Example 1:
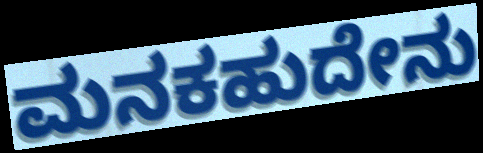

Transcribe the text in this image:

ಮನಕಹುದೇನು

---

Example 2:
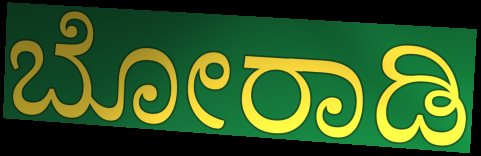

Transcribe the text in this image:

ಬೋರಾಡಿ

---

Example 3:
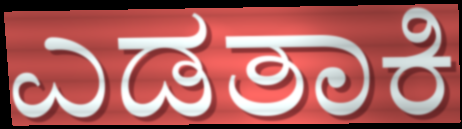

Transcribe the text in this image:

ಎಡತಾಕಿ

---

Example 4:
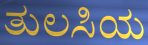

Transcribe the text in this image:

ತುಲಸಿಯ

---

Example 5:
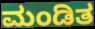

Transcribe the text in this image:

ಮಂಡಿತ